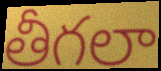
తీగలా